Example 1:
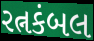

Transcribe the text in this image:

રત્નકંબલ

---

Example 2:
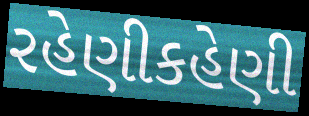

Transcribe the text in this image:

રહેણીકહેણી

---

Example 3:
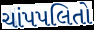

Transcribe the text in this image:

ચાંપપલિતો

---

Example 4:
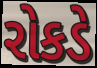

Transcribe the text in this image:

રોકડે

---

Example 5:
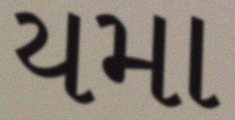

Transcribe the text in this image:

યમા